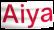
Aiya